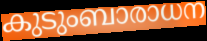
കുടുംബാരാധന